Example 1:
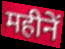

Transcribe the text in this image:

महीनें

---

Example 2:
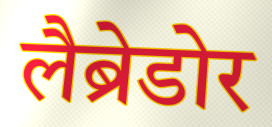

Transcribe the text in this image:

लैब्रेडोर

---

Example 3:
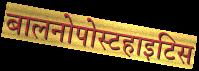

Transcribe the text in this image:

बालनोपोस्टहाइटिस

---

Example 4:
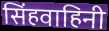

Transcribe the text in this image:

सिंहवाहिनी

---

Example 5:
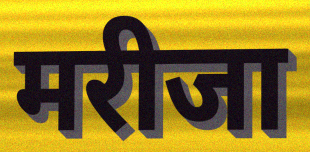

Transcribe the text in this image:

मरीजा